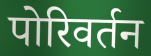
पोरिवर्तन